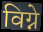
विग्ने